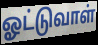
ஓட்டுவாள்